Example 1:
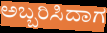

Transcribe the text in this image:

ಅಬ್ಬರಿಸಿದಾಗ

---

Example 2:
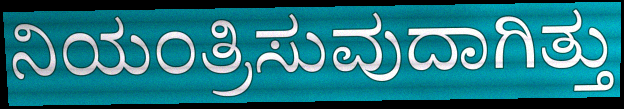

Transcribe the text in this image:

ನಿಯಂತ್ರಿಸುವುದಾಗಿತ್ತು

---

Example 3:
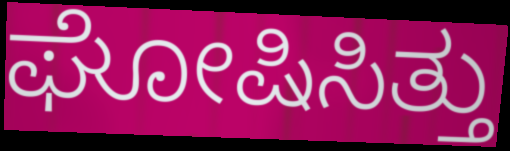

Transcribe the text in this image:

ಘೋಷಿಸಿತ್ತು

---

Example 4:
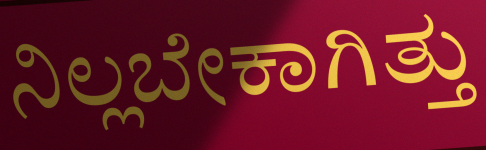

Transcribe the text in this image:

ನಿಲ್ಲಬೇಕಾಗಿತ್ತು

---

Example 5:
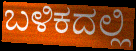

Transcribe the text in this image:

ಬಳಿಕದಲ್ಲಿ